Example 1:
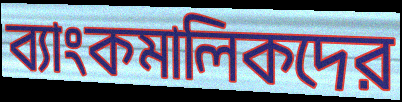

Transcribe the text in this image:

ব্যাংকমালিকদের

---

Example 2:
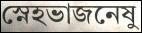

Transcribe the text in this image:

স্নেহভাজনেষু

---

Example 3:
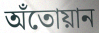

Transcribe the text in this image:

অঁতোয়ান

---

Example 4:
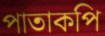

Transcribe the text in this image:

পাতাকপি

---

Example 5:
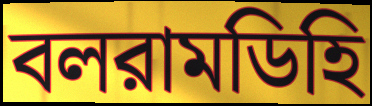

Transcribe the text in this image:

বলরামডিহি